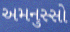
અમનુસ્સો